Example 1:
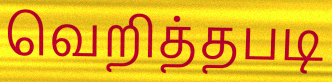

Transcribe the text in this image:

வெறித்தபடி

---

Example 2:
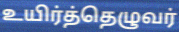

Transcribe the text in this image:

உயிர்த்தெழுவர்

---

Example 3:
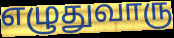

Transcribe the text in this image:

எழுதுவாரு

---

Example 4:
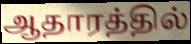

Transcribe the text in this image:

ஆதாரத்தில்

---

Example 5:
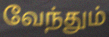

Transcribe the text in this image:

வேந்தும்